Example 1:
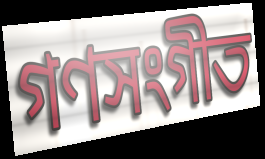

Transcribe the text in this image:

গণসংগীত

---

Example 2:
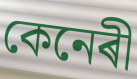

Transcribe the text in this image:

কেনেৰী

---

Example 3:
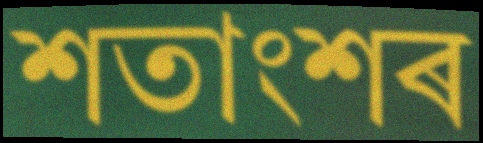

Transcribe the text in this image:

শতাংশৰ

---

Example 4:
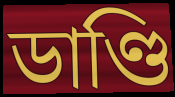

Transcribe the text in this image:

ডাণ্ডি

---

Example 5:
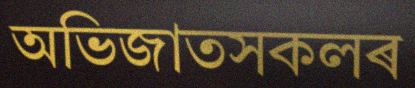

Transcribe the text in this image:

অভিজাতসকলৰ